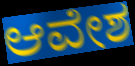
ಆವೇಶ